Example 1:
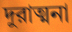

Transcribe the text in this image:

দুরাত্মনা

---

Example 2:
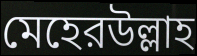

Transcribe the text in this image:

মেহেরউল্লাহ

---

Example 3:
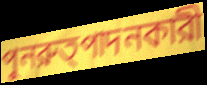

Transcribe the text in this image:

পুনরুত্পাদনকারী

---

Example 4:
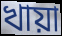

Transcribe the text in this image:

খায়া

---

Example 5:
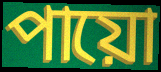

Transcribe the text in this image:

পায়ো